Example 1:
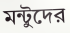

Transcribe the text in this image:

মন্টুদের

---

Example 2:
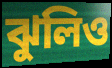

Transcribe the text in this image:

ঝুলিও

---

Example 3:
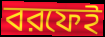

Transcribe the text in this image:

বরফেই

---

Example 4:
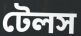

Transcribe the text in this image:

টেলস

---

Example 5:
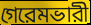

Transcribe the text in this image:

গেরেমভারী